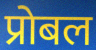
प्रोबल